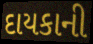
દાયકાની